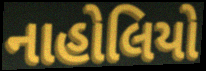
નાહોલિયો